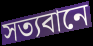
সত্যবানে